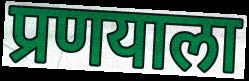
प्रणयाला